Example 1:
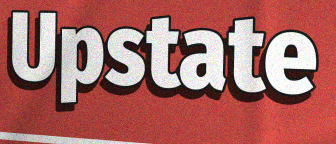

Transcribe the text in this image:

Upstate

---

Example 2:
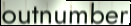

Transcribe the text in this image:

outnumber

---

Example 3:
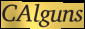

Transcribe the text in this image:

CAlguns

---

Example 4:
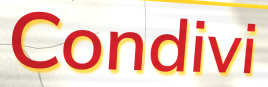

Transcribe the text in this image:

Condivi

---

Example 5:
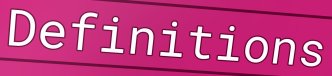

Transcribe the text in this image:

Definitions